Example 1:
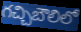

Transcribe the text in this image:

గచ్చిబౌలిలో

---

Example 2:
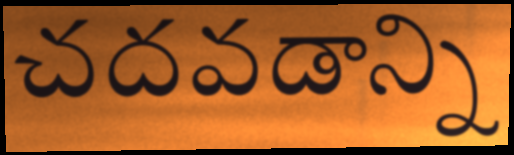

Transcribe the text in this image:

చదవడాన్ని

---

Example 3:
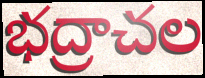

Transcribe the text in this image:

భద్రాచల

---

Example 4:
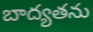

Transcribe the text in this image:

బాద్యతను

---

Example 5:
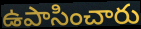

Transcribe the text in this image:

ఉపాసించారు